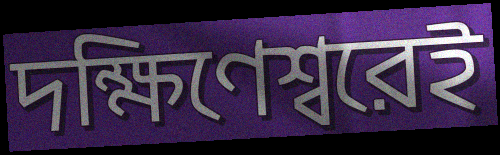
দক্ষিণেশ্বরেই